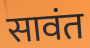
सावंत